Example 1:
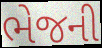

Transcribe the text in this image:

ભેજની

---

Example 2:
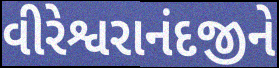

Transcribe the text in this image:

વીરેશ્વરાનંદજીને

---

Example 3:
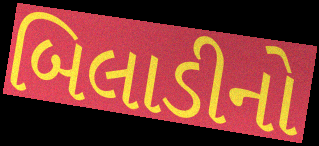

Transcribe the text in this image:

બિલાડીનો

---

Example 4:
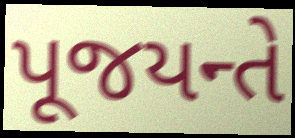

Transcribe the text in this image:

પૂજયન્તે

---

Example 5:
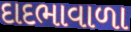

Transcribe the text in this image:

દાદભાવાળા